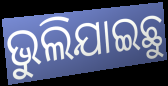
ଭୁଲିଯାଇଛୁ